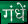
गंधें